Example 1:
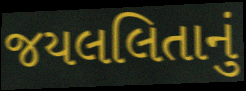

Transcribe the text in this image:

જયલલિતાનું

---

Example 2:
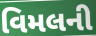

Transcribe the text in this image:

વિમલની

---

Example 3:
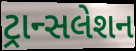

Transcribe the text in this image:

ટ્રાન્સલેશન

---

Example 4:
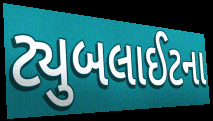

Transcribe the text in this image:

ટ્યુબલાઈટના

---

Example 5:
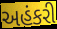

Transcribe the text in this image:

અહંકરી